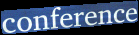
conference